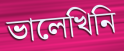
ভালেখিনি